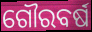
ଗୌରବର୍ଷ